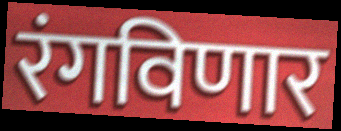
रंगविणार